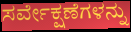
ಸರ್ವೇಕ್ಷಣೆಗಳನ್ನು